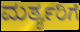
ಮರ್ತ್ಯರಿಗೆ